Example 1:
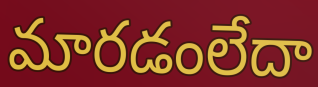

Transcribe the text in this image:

మారడంలేదా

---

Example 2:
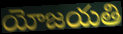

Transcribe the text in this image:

యోజయతి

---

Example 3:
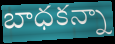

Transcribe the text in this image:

బాధకన్నా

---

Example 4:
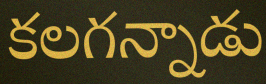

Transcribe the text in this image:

కలగన్నాడు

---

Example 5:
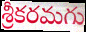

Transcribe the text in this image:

శ్రీకరమగు